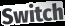
Switch